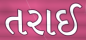
તરાઈ